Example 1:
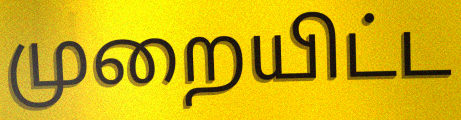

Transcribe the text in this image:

முறையிட்ட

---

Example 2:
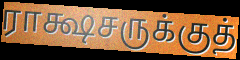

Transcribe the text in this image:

ராக்ஷசருக்குத்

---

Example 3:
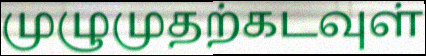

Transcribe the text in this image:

முழுமுதற்கடவுள்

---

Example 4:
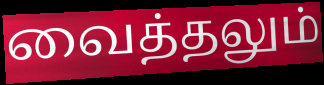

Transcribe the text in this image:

வைத்தலும்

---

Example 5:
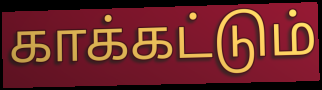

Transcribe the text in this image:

காக்கட்டும்